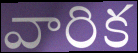
వారిక